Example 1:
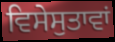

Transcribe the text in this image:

ਵਿਸੇਸੁਤਾਵਾਂ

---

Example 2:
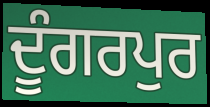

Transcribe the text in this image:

ਦੂੰਗਰਪੁਰ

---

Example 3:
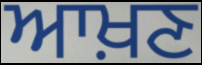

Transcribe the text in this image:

ਆਖ਼ਣ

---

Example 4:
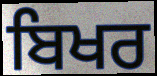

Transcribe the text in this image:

ਬਿਖਰ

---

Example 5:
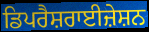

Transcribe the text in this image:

ਡਿਪਰੈਸ਼ਰਾਈਜ਼ੇਸ਼ਨ